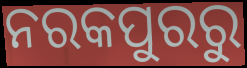
ନରକପୁରରୁ